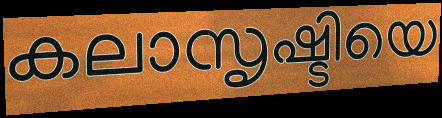
കലാസൃഷ്ടിയെ